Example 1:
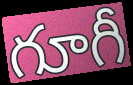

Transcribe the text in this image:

గూగీ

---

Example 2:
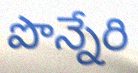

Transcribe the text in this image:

పొన్నేరి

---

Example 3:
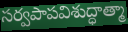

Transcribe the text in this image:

సర్వపాపవిశుద్ధాత్మా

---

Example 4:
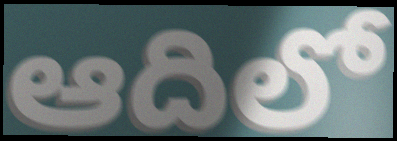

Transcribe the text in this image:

ఆదిలో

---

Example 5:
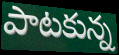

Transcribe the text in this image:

పాటకున్న